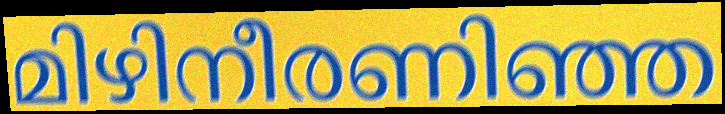
മിഴിനീരണിഞ്ഞ